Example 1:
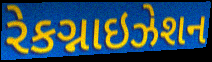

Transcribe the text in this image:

રેકગ્નાઇઝેશન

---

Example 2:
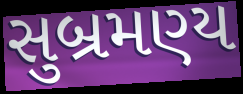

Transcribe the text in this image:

સુબ્રમણ્ય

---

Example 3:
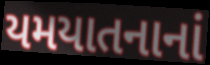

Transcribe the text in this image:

યમયાતનાનાં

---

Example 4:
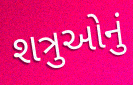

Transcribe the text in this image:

શત્રુઓનું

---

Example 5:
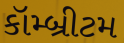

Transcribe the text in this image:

કૉમ્બ્રીટમ